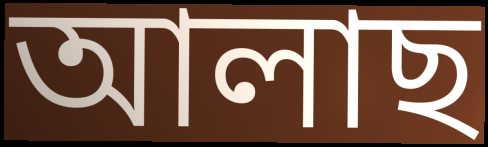
আলাছ